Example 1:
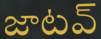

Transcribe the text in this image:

జాటవ్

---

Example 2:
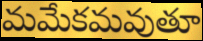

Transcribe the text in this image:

మమేకమవుతూ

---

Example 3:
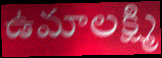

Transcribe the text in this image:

ఉమాలక్ష్మి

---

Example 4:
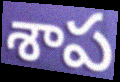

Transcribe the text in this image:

శాప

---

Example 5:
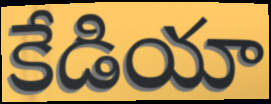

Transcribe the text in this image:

కేడియా